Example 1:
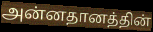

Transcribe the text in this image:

அன்னதானத்தின்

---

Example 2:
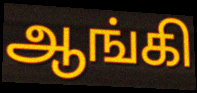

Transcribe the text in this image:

ஆங்கி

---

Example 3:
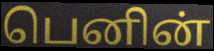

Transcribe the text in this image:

பெனின்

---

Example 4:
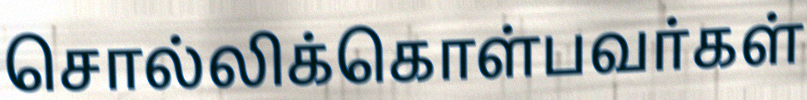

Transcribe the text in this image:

சொல்லிக்கொள்பவர்கள்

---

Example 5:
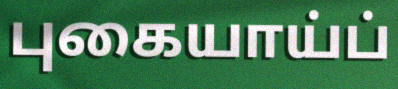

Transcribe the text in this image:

புகையாய்ப்